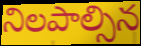
నిలపాల్సిన